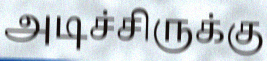
அடிச்சிருக்கு